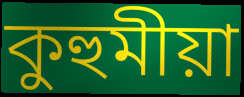
কুহুমীয়া